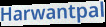
Harwantpal